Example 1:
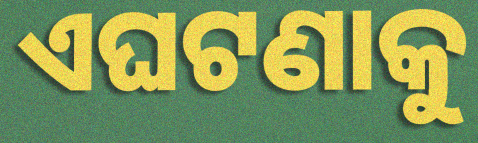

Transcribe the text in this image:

ଏଘଟଣାକୁ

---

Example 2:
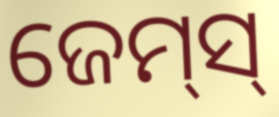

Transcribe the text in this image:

ଜେମ୍‌ସ୍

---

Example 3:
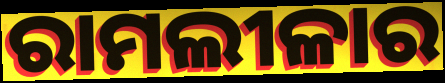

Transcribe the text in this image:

ରାମଲୀଳାର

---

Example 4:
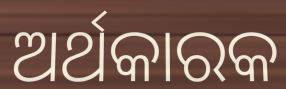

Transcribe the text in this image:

ଅର୍ଥକାରକ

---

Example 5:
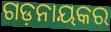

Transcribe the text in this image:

ଗଡ଼ନାୟକର